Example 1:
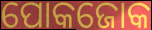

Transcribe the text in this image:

ପୋକଜୋକ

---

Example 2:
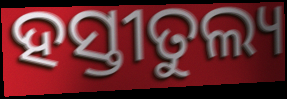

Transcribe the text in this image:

ହସ୍ତୀତୁଲ୍ୟ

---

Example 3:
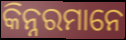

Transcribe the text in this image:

କିନ୍ନରମାନେ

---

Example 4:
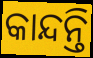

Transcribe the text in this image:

କାନ୍ଦନ୍ତି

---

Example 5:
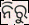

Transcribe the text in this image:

ନିରୁ